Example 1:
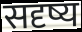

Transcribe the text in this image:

सदृष्य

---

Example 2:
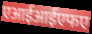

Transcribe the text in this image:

एआईआईएफए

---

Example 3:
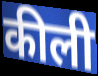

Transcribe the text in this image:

कीली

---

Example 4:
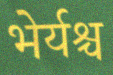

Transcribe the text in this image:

भेर्यश्च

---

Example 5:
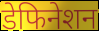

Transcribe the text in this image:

डेफिनेशन